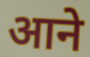
आने